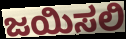
ಜಯಿಸಲಿ